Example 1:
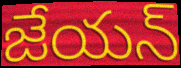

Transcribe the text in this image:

జేయన్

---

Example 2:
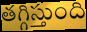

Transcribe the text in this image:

తగ్గిస్తుంది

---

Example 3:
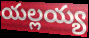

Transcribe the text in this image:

యల్లయ్య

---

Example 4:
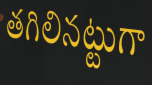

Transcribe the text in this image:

తగిలినట్టుగా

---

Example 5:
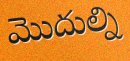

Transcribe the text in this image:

మొదుల్ని